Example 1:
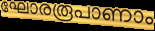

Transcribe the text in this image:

ഘോരരൂപാണാം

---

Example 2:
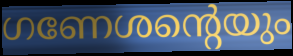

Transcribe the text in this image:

ഗണേശന്റെയും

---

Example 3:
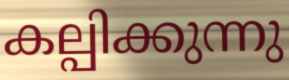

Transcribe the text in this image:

കല്പിക്കുന്നു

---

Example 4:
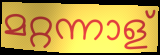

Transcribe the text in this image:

മറ്റന്നാള്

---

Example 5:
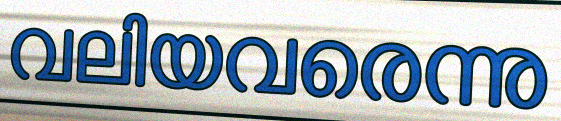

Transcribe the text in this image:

വലിയവരെന്നു